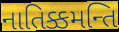
નાતિક્કમન્તિ